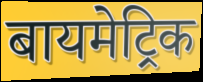
बायमेट्रिक